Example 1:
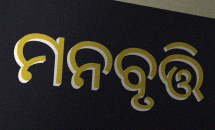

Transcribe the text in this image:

ମନବୃତ୍ତି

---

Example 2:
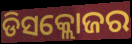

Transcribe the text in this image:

ଡିସକ୍ଲୋଜର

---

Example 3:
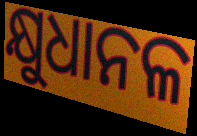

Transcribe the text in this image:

କ୍ଷୁଧାନଳ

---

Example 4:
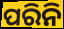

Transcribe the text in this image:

ପରିନି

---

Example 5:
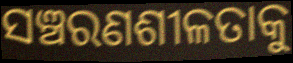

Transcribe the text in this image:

ସଞ୍ଚରଣଶୀଳତାକୁ